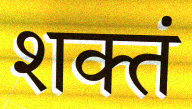
शक्तं